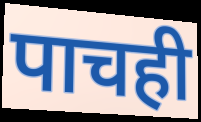
पाचही